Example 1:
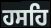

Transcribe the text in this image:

ਹਸਹਿ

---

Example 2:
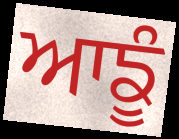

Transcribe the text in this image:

ਆਙੂੰ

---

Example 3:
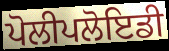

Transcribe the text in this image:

ਪੋਲੀਪਲੋਇਡੀ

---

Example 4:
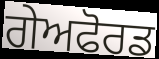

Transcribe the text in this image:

ਗੇਅਫੋਰਡ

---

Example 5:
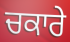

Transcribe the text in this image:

ਚਕਾਰੇ